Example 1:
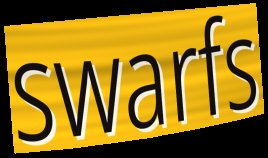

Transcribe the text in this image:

swarfs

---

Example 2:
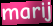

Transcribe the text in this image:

marij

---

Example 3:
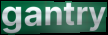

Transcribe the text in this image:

gantry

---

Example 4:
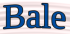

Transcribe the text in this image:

Bale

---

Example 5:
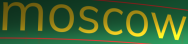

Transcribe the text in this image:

moscow